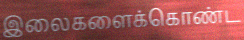
இலைகளைக்கொண்ட